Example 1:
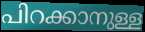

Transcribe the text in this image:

പിറക്കാനുള്ള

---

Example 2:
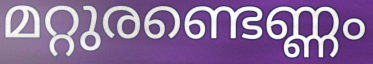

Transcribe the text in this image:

മറ്റുരണ്ടെണ്ണം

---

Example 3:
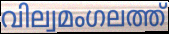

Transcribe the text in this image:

വില്വമംഗലത്ത്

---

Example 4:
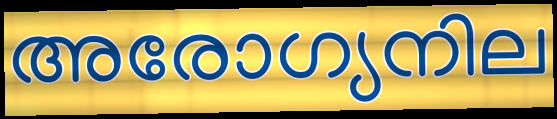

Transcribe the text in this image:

അരോഗ്യനില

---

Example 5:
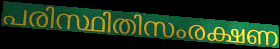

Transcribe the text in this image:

പരിസ്ഥിതിസംരക്ഷണ